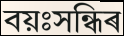
বয়ঃসন্ধিৰ